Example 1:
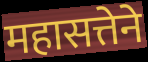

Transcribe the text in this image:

महासत्तेने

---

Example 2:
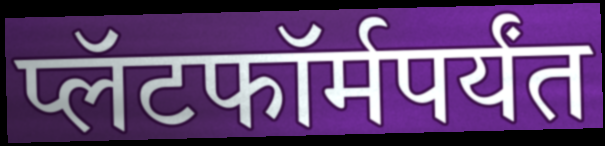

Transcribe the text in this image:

प्लॅटफॉर्मपर्यंत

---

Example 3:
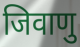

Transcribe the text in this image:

जिवाणु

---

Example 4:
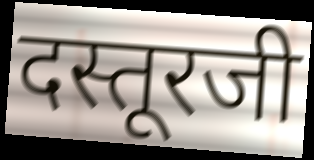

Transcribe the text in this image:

दस्तूरजी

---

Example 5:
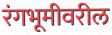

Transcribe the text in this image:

रंगभूमीवरील